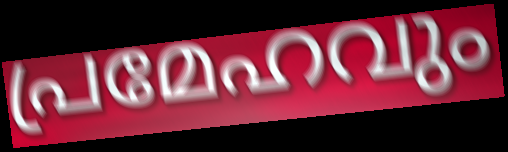
പ്രമേഹവും